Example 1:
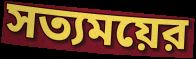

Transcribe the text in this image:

সত্যময়ের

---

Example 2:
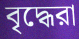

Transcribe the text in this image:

বৃদ্ধেরা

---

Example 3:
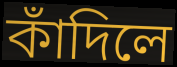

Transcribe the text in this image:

কাঁদিলে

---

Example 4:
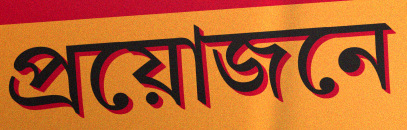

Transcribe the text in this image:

প্রয়োজনে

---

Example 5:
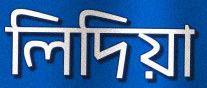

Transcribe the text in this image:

লিদিয়া